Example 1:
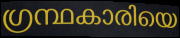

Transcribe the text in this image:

ഗ്രന്ഥകാരിയെ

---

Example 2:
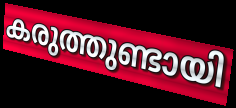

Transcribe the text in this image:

കരുത്തുണ്ടായി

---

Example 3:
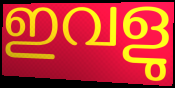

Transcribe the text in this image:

ഇവളു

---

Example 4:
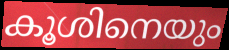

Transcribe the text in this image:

കൂശിനെയും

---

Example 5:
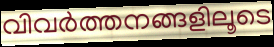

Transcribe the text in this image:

വിവർത്തനങ്ങളിലൂടെ